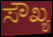
ಸೌಖ್ಯ